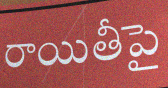
రాయితీపై